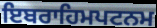
ਇਬਰਾਹਿਮਪਟਨਮ